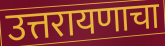
उत्तरायणाचा